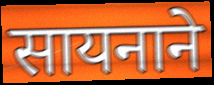
सायनाने